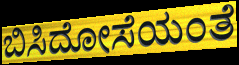
ಬಿಸಿದೋಸೆಯಂತೆ